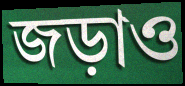
জড়াও